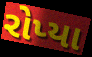
રોપ્યા